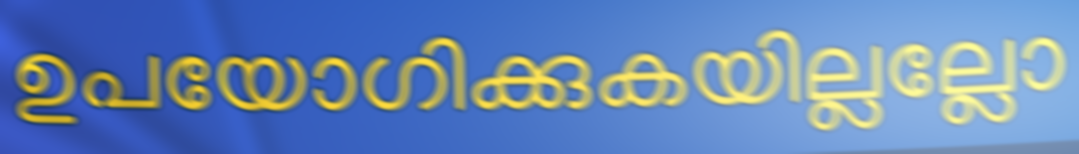
ഉപയോഗിക്കുകയില്ലല്ലോ